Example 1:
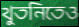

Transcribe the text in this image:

থুতনিতেও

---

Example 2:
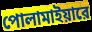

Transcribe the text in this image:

পোলামাইয়ারে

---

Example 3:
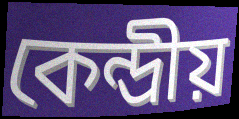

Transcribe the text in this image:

কেন্দ্রীয়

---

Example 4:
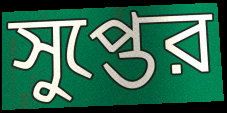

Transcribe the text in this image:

সুপ্তের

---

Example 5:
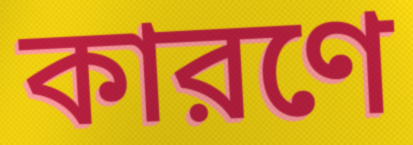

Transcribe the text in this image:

কারণে